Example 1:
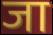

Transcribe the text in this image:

जा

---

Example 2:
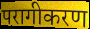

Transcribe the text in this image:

परागीकरण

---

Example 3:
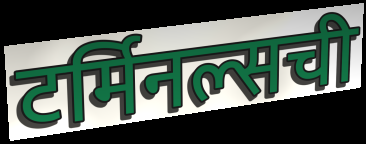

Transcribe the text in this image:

टर्मिनल्सची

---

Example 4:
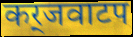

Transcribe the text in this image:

कर्जवाटप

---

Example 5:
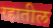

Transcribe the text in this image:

रहातील